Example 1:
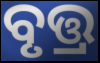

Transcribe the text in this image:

ବୃତ୍ତ୍ର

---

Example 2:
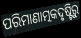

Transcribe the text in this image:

ପରିମାଣାତ୍ମକଦୃଷ୍ଟିରୁ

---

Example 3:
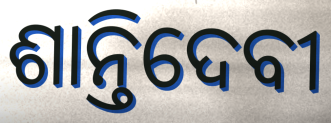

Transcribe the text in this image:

ଶାନ୍ତିଦେବୀ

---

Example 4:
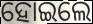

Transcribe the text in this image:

ହୋଇଲେ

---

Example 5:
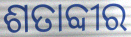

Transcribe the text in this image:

ଶତାବ୍ଦୀର